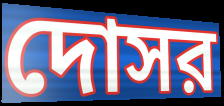
দোসর